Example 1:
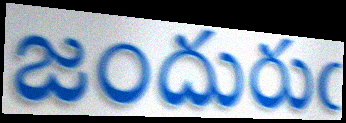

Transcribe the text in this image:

జందురుఁ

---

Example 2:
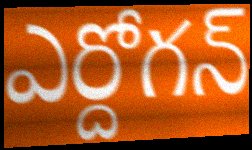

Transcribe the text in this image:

ఎర్దోగన్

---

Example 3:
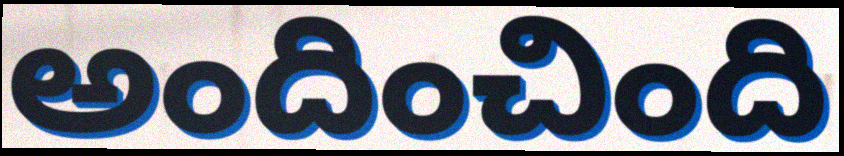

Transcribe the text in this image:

అందించింది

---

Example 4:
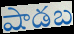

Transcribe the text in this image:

షాడబ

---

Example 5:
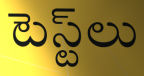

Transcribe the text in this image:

టెస్ట్‌లు